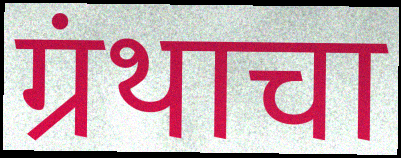
ग्रंथाचा